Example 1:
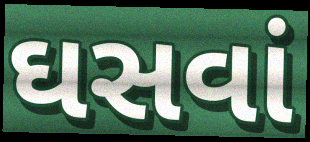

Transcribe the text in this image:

ઘસવાં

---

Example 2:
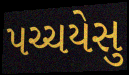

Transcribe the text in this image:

પચ્ચયેસુ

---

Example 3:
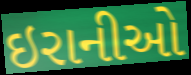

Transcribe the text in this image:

ઇરાનીઓ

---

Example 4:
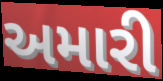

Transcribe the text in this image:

અમારી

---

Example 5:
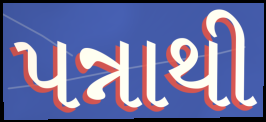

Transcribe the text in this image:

પન્નાથી